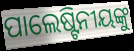
ପାଲେଷ୍ଟିନୀୟଙ୍କୁ